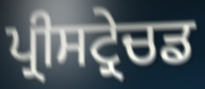
ਪ੍ਰੀਸਟ੍ਰੇਚਡ